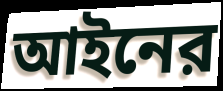
আইনের